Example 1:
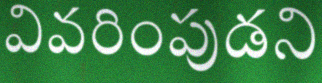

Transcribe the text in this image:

వివరింపుడని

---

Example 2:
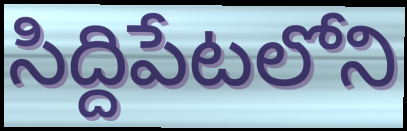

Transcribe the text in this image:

సిద్దిపేటలోని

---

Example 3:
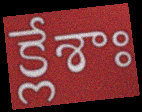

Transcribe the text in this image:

క్లేశాః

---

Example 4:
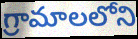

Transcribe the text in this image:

గ్రామాలలోని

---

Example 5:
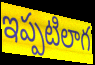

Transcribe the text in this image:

ఇప్పటిలాగ